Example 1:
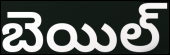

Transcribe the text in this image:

బెయిల్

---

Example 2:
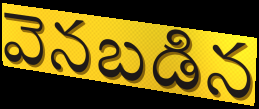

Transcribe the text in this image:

వెనబడిన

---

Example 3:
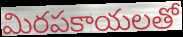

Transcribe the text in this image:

మిరపకాయలతో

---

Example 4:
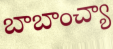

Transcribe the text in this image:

బాబాంచ్యా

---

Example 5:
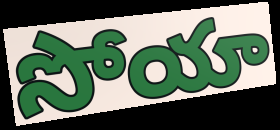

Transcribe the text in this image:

సోయా